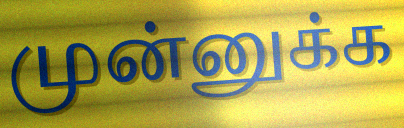
முன்னுக்க